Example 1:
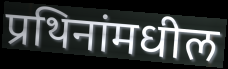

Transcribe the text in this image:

प्रथिनांमधील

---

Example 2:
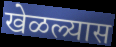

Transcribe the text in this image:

खेळल्यास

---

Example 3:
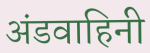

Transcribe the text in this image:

अंडवाहिनी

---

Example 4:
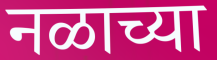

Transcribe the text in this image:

नळाच्या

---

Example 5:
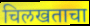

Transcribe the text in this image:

चिलखताचा